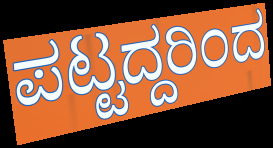
ಪಟ್ಟದ್ದರಿಂದ